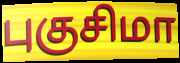
புகுசிமா